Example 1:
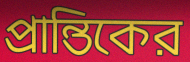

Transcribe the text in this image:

প্রান্তিকের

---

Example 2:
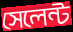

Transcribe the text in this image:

সেলেন্ট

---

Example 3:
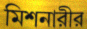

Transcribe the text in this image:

মিশনারীর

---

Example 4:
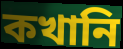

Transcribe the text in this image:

কখানি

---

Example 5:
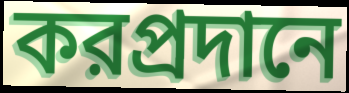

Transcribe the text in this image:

করপ্রদানে